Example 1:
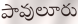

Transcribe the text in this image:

పావులూరు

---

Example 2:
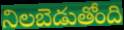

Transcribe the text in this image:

నిలబెడుతోంది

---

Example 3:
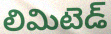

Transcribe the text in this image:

లిమిటెడ్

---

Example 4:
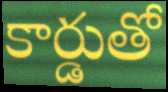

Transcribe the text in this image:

కార్డుతో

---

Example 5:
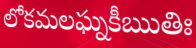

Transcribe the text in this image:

లోకమలఘ్నకీఋతిః